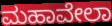
ಮಹಾವೇಲಾ